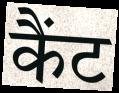
कैंट